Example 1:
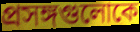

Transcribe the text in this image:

প্রসঙ্গগুলোকে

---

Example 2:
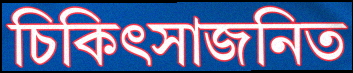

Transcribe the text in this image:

চিকিৎসাজনিত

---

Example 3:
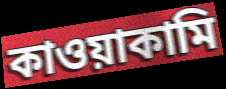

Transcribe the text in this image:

কাওয়াকামি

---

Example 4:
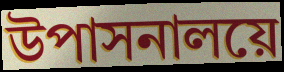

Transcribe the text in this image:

উপাসনালয়ে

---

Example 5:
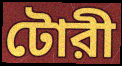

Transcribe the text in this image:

টোরী